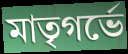
মাতৃগর্ভে